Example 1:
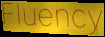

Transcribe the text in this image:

Fluency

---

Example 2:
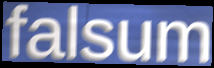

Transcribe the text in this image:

falsum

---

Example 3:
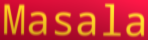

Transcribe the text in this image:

Masala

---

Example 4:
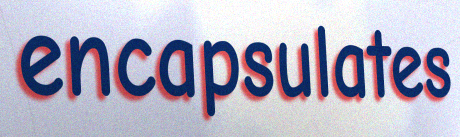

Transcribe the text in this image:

encapsulates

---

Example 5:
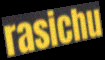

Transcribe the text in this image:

rasichu